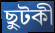
ছুটকী